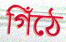
গিঁঠে